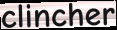
clincher